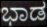
ಭಾಡ